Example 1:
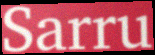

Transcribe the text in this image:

Sarru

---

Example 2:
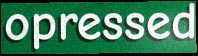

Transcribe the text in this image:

opressed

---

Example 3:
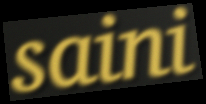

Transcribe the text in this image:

saini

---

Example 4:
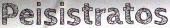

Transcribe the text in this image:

Peisistratos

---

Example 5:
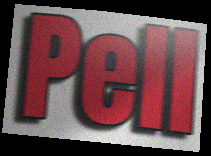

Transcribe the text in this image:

Pell